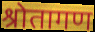
श्रोतागण